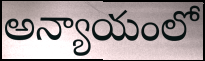
అన్యాయంలో